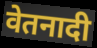
वेतनादी